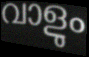
വാളും